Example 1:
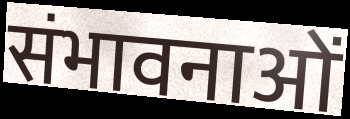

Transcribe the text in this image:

संभावनाओं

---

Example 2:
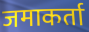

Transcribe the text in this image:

जमाकर्ता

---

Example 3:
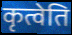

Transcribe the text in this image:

कृत्वेति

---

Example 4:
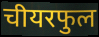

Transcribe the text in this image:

चीयरफुल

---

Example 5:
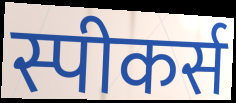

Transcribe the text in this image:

स्पीकर्स